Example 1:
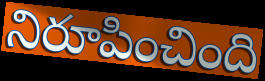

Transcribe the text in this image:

నిరూపించింది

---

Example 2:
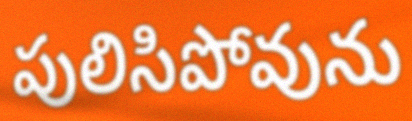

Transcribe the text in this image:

పులిసిపోవును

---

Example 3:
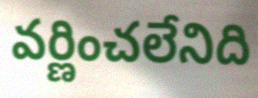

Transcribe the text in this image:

వర్ణించలేనిది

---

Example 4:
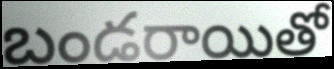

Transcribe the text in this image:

బండరాయితో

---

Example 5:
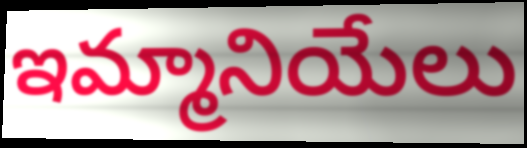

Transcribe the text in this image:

ఇమ్మానియేలు